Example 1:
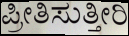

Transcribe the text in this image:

ಪ್ರೀತಿಸುತ್ತೀರಿ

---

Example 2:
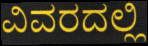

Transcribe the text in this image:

ವಿವರದಲ್ಲಿ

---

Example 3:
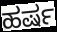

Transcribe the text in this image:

ಹರ್ಷ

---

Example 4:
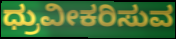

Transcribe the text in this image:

ಧ್ರುವೀಕರಿಸುವ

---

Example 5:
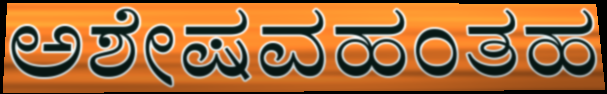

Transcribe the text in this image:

ಅಶೇಷವಹಂತಹ